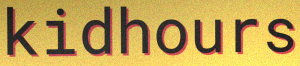
kidhours